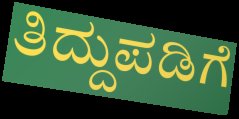
ತಿದ್ದುಪಡಿಗೆ